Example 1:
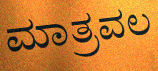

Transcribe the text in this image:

ಮಾತ್ರವಲ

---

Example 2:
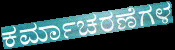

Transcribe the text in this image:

ಕರ್ಮಾಚರಣೆಗಳ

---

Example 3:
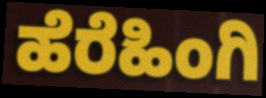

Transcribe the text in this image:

ಹೆರೆಹಿಂಗಿ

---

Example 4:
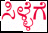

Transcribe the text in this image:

ಸಿಳ್ಳೆಗೆ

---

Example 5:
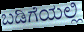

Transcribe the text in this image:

ಬಡಿಗೆಯಲ್ಲಿ